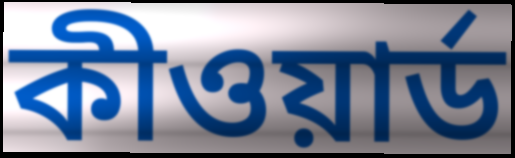
কীওয়ার্ড